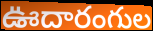
ఊదారంగుల